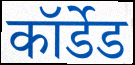
कॉर्डेड